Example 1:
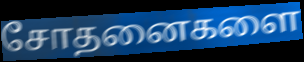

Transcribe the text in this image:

சோதனைகளை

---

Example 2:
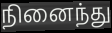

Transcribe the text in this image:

நினைந்து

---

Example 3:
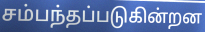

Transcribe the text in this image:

சம்பந்தப்படுகின்றன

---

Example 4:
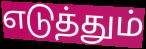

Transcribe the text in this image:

எடுத்தும்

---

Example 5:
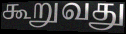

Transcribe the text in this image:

கூறுவது